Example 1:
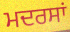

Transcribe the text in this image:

ਮਦਰਸਾਂ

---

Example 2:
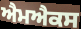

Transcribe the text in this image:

ਐਮਐਕਸ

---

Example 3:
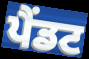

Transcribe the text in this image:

ਪੈਂਡਟ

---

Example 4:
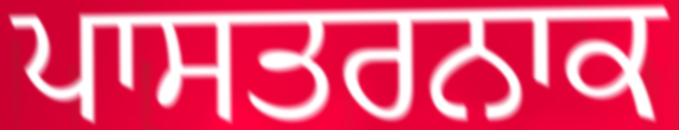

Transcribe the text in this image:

ਪਾਸਤਰਨਾਕ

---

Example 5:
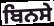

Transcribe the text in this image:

ਬਿਨਸੇ